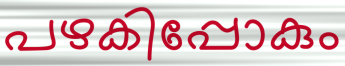
പഴകിപ്പോകും